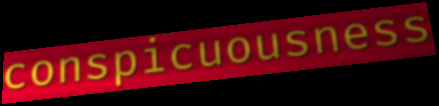
conspicuousness